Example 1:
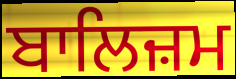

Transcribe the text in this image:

ਬਾਲਿਜ਼ਮ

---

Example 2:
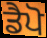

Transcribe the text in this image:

ਡੈਪੋ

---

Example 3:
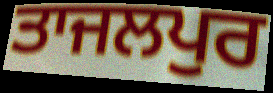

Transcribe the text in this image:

ਤਾਜਲਪੁਰ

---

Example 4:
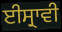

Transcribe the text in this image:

ਈਸ੍ਰਾਵੀ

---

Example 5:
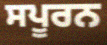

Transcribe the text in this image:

ਸਪੂਰਨ